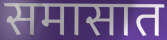
समासात